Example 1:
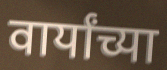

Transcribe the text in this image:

वार्यांच्या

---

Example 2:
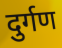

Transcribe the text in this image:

दुर्गण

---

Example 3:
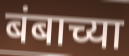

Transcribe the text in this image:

बंबाच्या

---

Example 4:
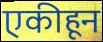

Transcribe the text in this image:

एकीहून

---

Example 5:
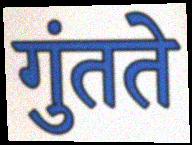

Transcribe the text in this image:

गुंतते